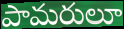
పామరులూ